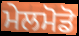
ਮੇਲਮੋਡੋ